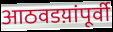
आठवडय़ांपूर्वी